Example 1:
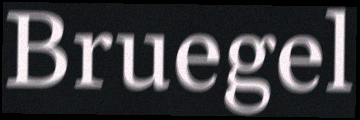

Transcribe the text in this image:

Bruegel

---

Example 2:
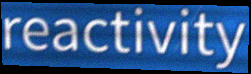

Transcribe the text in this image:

reactivity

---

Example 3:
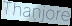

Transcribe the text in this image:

Thanjore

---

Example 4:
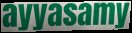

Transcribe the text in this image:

ayyasamy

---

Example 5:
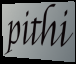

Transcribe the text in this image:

pithi